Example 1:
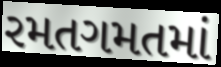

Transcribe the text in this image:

રમતગમતમાં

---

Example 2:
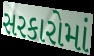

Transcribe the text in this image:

સરકારોમાં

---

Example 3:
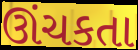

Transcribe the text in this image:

ઊંચકતા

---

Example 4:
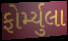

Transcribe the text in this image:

ફોર્મ્યુલા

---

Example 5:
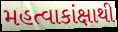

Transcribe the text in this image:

મહત્વાકાંક્ષાથી